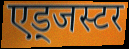
एड्जस्टर